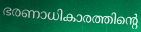
ഭരണാധികാരത്തിന്റെ